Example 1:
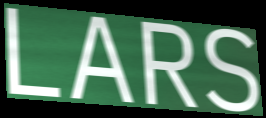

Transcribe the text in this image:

LARS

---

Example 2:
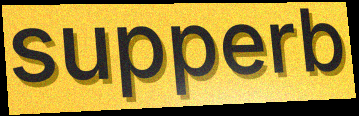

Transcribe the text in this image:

supperb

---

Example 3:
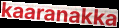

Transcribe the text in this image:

kaaranakka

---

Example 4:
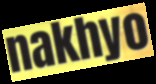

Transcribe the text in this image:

nakhyo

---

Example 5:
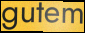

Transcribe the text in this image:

gutem